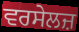
ਵਰਸੇਲਜ਼